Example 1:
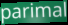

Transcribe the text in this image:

parimal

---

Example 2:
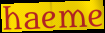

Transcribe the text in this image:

haeme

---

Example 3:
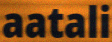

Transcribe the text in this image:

aatali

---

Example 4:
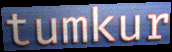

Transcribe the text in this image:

tumkur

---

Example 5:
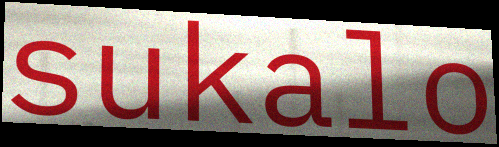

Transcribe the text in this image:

sukalo